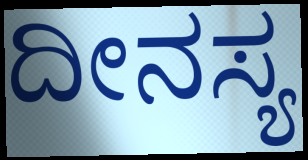
ದೀನಸ್ಯ